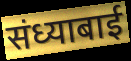
संध्याबाई